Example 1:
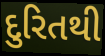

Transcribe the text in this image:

દુરિતથી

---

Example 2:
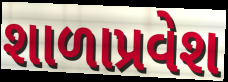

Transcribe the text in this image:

શાળાપ્રવેશ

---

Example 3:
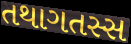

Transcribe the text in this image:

તથાગતસ્સ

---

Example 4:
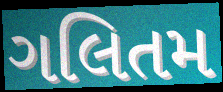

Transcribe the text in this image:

ગલિતમ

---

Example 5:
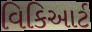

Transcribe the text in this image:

વિકિઆર્ટ